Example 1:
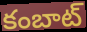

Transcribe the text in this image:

కంబాట్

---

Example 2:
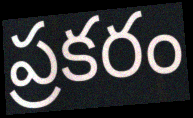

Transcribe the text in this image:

ప్రకరం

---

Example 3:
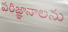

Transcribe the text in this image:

పరిజ్ఞానాలను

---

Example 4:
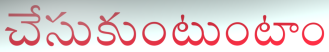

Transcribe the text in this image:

చేసుకుంటుంటాం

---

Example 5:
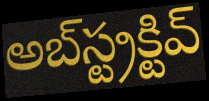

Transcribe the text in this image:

అబ్‌స్ట్రక్టివ్